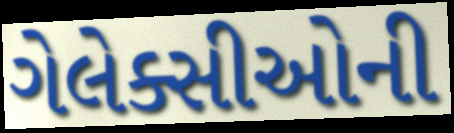
ગેલેક્સીઓની